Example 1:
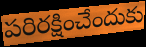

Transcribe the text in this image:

పరిరక్షించేందుకు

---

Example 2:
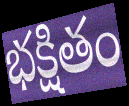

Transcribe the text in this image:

భక్షితం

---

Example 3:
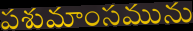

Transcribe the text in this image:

పశుమాంసమును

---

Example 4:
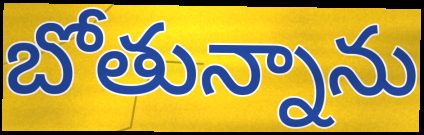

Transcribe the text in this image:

బోతున్నాను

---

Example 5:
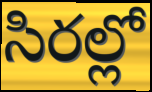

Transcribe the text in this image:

సిరల్లో